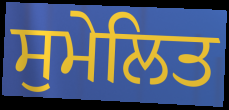
ਸੁਮੇਲਿਤ